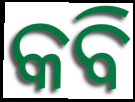
କବି